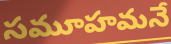
సమూహమనే